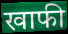
खाफी